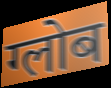
ग्लोब